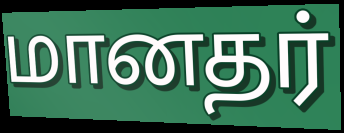
மானதர்